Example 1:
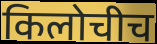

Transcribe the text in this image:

किलोचीच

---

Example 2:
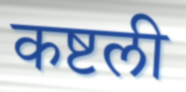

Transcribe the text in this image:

कष्टली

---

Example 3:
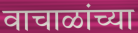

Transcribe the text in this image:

वाचाळांच्या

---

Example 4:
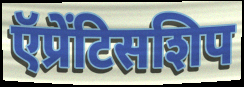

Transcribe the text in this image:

ऍप्रेंटिसशिप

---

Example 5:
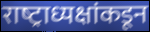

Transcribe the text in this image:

राष्ट्राध्यक्षांकडून